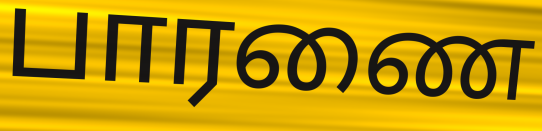
பாரணை